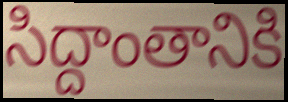
సిద్దాంతానికి